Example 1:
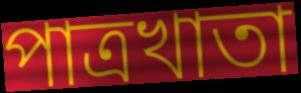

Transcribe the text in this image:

পাত্রখাতা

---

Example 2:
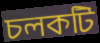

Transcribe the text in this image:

চলকটি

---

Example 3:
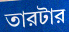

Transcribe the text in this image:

তারটার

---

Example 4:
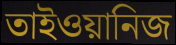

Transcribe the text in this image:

তাইওয়ানিজ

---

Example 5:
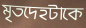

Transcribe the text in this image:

মৃতদেহটাকে